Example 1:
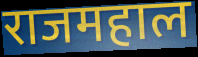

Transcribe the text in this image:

राजमहाल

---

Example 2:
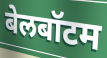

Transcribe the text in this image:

बेलबॉटम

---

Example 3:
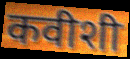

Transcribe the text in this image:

कवीशी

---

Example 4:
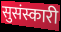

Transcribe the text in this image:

सुसंस्कारी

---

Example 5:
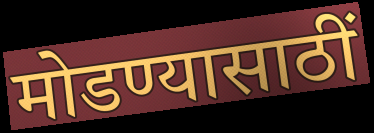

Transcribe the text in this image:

मोडण्यासाठीं